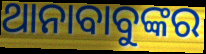
ଥାନାବାବୁଙ୍କର